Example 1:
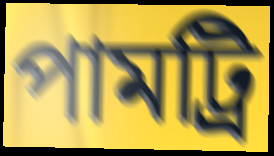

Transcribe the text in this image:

পামট্রি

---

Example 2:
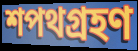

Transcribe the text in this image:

শপথগ্রহণ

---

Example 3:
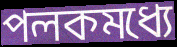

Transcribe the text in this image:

পলকমধ্যে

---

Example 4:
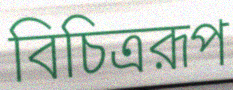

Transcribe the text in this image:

বিচিত্ররূপ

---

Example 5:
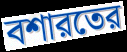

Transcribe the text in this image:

বশারতের